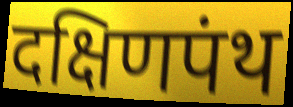
दक्षिणपंथ